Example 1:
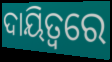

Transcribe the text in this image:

ଦାୟିତ୍ବରେ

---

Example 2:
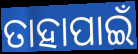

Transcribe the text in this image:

ତାହାପାଇଁ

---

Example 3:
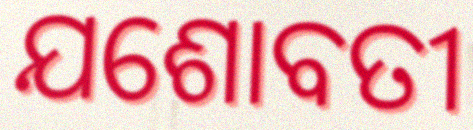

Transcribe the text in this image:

ଯଶୋବତୀ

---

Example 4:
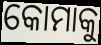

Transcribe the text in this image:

କୋମାକୁ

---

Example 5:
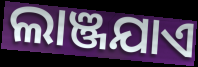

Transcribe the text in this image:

ଲାଞ୍ଜଯାଏ